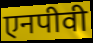
एनपीवी